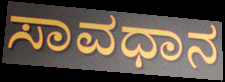
ಸಾವಧಾನ